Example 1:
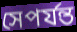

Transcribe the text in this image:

সেপর্যন্ত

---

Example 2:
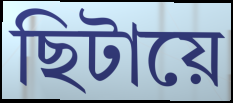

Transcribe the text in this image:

ছিটায়ে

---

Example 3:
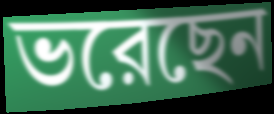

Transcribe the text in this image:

ভরেছেন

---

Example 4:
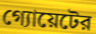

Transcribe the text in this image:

গ্যোয়েটের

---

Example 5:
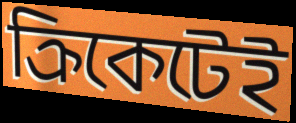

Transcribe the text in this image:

ক্রিকেটেই